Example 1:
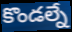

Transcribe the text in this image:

కొండల్నే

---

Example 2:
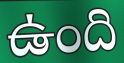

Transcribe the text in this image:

ఉంది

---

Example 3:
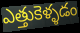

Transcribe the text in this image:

ఎత్తుకెళ్ళడం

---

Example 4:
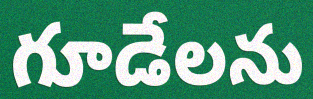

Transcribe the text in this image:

గూడేలను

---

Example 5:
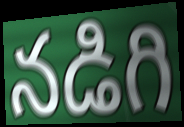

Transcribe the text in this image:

నడిగి